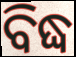
ବିଦ୍ଧ